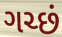
ગચ્છં